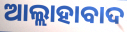
ଆଲ୍ଲାହାବାଦ